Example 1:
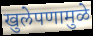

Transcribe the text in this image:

खुलेपणामुळे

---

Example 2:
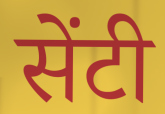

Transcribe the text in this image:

सेंटी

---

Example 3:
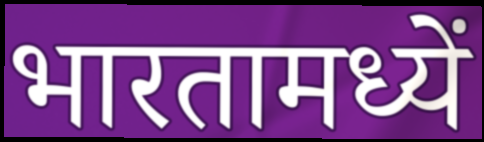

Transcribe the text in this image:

भारतामध्यें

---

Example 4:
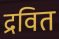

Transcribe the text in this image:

द्रवित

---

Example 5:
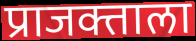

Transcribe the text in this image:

प्राजक्ताला